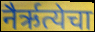
नैर्ऋत्येचा